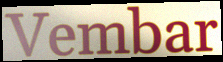
Vembar